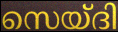
സെയ്ദി